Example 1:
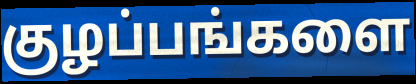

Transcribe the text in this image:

குழப்பங்களை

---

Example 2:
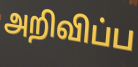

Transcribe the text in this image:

அறிவிப்ப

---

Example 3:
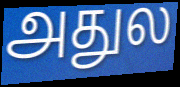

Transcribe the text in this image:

அதுல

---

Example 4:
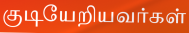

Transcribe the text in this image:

குடியேறியவர்கள்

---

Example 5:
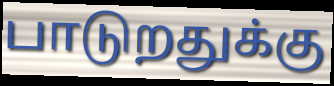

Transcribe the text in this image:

பாடுறதுக்கு